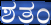
ಶತಂ